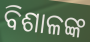
ବିଶାଳଙ୍କ